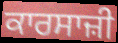
ਕਾਰਸਾਜ਼ੀ